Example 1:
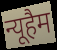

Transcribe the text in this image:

न्यूहैम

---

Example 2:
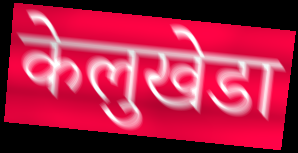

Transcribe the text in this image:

केलुखेडा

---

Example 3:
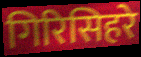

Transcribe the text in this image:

गिरिसिहरे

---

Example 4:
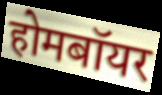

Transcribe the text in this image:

होमबॉयर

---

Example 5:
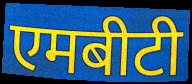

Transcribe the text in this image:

एमबीटी